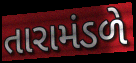
તારામંડળે